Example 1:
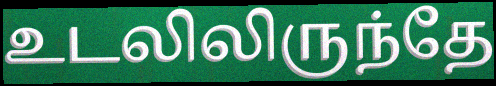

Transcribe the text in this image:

உடலிலிருந்தே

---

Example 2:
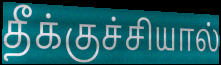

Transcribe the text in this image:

தீக்குச்சியால்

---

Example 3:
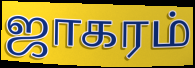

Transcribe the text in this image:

ஜாகரம்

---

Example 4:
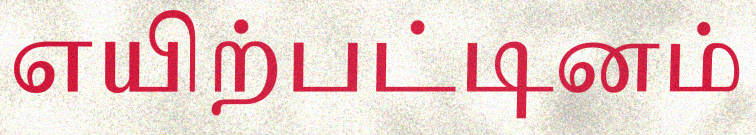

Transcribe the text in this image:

எயிற்பட்டினம்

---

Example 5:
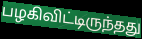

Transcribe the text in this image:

பழகிவிட்டிருந்தது